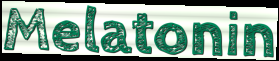
Melatonin